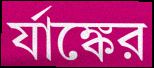
র্যাঙ্কের